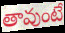
తావుంటే